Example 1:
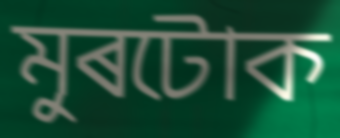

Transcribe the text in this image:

মুৰটোক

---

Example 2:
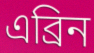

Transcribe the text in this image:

এব্ৰিন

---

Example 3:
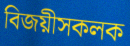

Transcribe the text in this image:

বিজয়ীসকলক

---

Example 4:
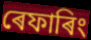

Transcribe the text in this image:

ৰেফাৰিং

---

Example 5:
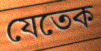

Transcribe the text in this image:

যেতেক